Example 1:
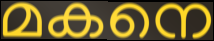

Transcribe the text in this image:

മകനെ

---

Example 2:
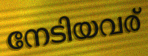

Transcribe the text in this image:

നേടിയവര്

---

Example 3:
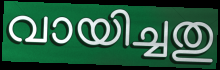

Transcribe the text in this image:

വായിച്ചതു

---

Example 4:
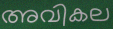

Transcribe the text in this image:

അവികല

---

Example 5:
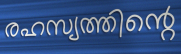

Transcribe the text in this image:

രഹസ്യത്തിന്റെ